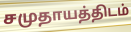
சமுதாயத்திடம்